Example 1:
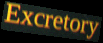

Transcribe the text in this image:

Excretory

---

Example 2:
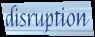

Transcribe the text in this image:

disruption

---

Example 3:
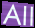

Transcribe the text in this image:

AII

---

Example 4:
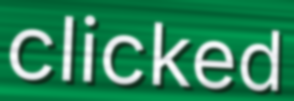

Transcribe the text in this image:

clicked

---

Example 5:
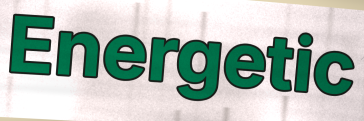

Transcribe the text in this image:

Energetic